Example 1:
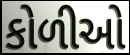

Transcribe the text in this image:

કોળીઓ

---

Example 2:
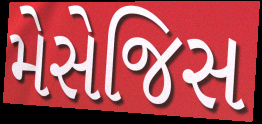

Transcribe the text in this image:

મેસેજિસ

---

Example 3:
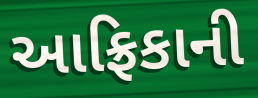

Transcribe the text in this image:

આફ્રિકાની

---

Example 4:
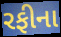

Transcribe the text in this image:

રફીના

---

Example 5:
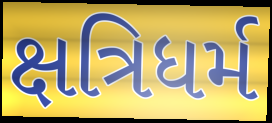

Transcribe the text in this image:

ક્ષત્રિધર્મ